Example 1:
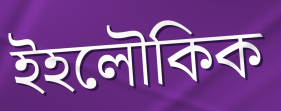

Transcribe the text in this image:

ইহলৌকিক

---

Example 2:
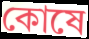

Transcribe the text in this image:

কোষে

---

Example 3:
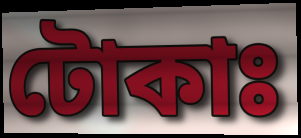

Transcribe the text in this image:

টোকাঃ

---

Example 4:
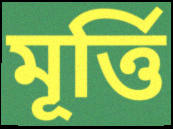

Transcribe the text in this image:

মূৰ্ত্তি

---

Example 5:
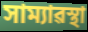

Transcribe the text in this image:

সাম্যাৱস্থা